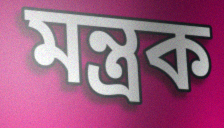
মন্ত্রক